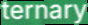
ternary